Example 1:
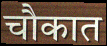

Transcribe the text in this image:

चौकात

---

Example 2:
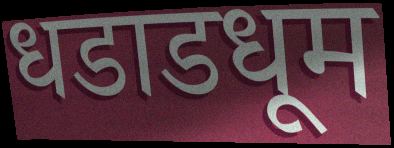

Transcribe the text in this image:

धडाडधूम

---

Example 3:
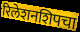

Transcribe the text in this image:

रिलेशनशिपचा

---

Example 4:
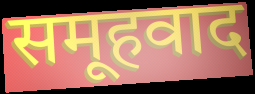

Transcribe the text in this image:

समूहवाद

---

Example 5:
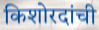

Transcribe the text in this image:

किशोरदांची